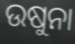
ଉଷୁନା